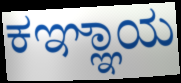
ಕಞ್ಞಾಯ